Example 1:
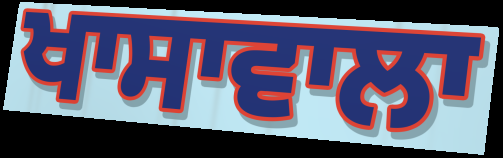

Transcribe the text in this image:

ਖਾਸਾਵਾਲਾ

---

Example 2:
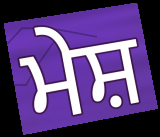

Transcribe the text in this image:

ਮੇਸ਼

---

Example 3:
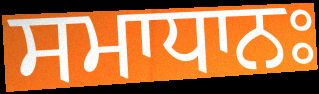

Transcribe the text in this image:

ਸਮਾਧਾਨਃ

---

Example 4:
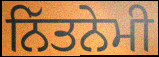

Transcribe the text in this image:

ਨਿੱਤਨੇਮੀ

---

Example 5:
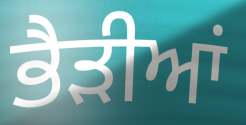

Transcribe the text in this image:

ਭੈੜੀਆਂ